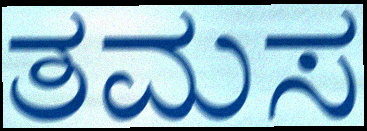
ತಮಸ